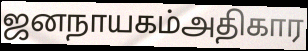
ஜனநாயகம்அதிகார